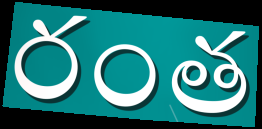
రంత